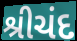
શ્રીચંદ